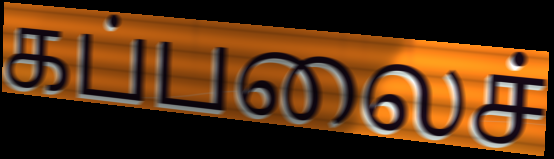
கப்பலைச்